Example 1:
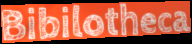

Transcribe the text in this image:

Bibilotheca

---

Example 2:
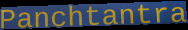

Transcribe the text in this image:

Panchtantra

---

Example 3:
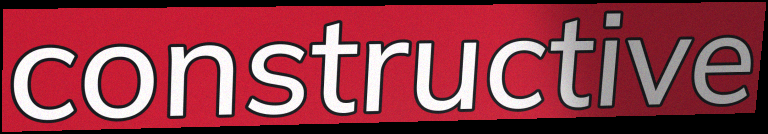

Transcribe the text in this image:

constructive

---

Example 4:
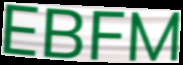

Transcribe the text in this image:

EBFM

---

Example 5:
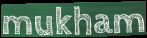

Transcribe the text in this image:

mukham